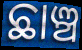
ଛାଞ୍ଚ